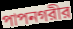
পাপনগরীর